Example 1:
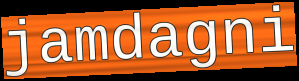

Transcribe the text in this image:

jamdagni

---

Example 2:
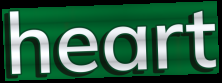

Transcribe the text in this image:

heart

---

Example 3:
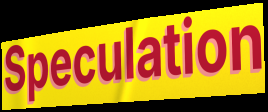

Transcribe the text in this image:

Speculation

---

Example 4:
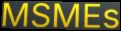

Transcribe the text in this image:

MSMEs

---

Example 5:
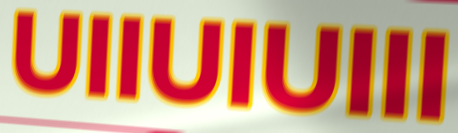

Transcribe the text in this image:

UIIUIUIII